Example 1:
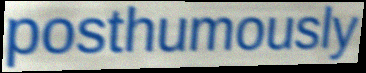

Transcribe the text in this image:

posthumously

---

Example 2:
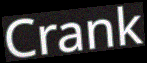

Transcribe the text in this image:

Crank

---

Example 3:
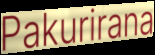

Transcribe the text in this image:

Pakurirana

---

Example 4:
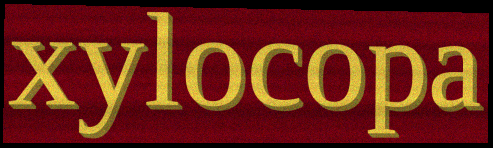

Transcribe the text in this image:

xylocopa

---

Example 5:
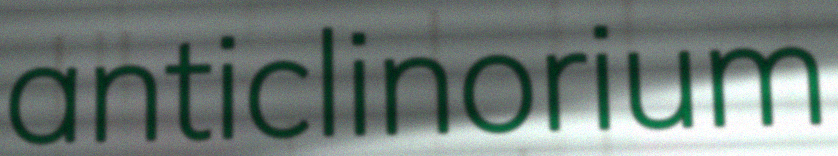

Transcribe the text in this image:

anticlinorium